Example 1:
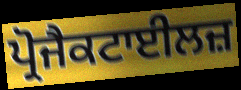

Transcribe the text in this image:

ਪ੍ਰੋਜੈਕਟਾਈਲਜ਼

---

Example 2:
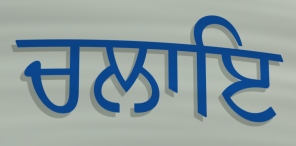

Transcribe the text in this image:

ਚਲਾਇ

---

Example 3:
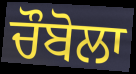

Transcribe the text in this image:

ਚੌਬੋਲਾ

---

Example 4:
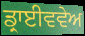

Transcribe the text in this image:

ਡ੍ਰਾਈਵਵੇਅ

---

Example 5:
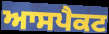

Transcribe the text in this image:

ਆਸਪੈਕਟ